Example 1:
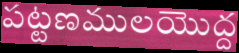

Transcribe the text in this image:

పట్టణములయొద్ద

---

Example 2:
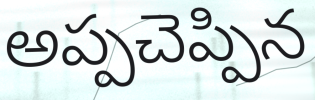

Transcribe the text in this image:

అప్పచెప్పిన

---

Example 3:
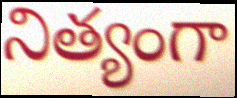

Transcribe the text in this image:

నిత్యంగా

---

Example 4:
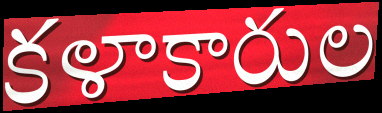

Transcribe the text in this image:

కళాకారుల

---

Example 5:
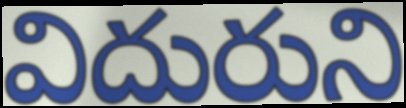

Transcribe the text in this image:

విదురుని